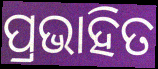
ପ୍ରଭାହିତ